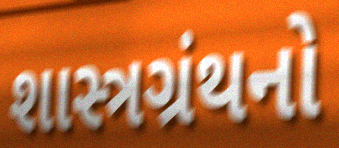
શાસ્ત્રગ્રંથનો